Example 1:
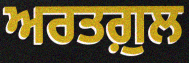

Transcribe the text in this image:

ਅਰਤਗ਼ੁਲ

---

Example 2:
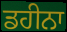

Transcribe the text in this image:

ਡਹੀਨਾ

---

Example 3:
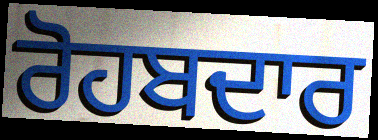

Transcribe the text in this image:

ਰੋਹਬਦਾਰ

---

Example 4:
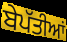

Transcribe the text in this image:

ਬੇਪੱਤੀਆਂ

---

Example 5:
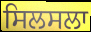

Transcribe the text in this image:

ਸਿਲਸਲਾ